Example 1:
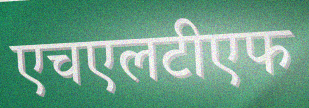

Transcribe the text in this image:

एचएलटीएफ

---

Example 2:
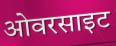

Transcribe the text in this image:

ओवरसाइट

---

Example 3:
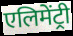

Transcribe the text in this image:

एलिमेंट्री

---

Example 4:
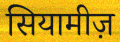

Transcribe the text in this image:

सियामीज़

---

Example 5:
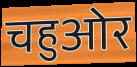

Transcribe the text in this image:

चहुओर